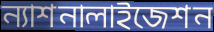
ন্যাশনালাইজেশন